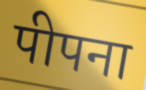
पीपना